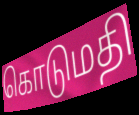
கொடுமதி